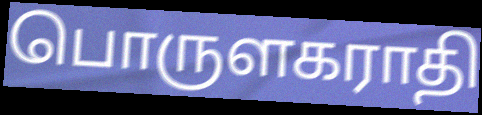
பொருளகராதி